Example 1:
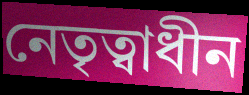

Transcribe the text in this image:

নেতৃত্বাধীন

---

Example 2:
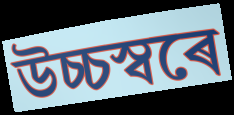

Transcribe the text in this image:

উচ্চস্বৰে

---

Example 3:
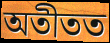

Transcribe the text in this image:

অতীতত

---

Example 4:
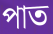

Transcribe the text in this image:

পাত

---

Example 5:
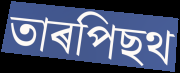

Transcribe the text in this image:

তাৰপিছথ